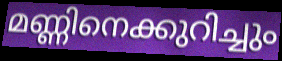
മണ്ണിനെക്കുറിച്ചും